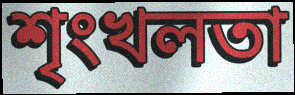
শৃংখলতা